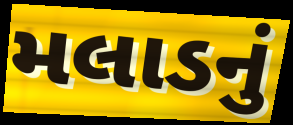
મલાડનું